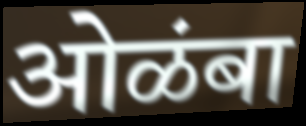
ओळंबा